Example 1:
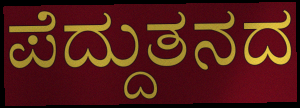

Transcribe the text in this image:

ಪೆದ್ದುತನದ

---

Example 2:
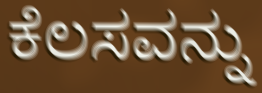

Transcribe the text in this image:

ಕೆಲಸವನ್ನು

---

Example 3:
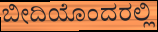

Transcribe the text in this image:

ಬೀದಿಯೊಂದರಲ್ಲಿ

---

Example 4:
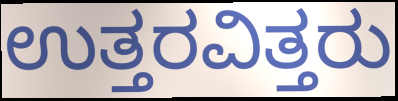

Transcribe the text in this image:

ಉತ್ತರವಿತ್ತರು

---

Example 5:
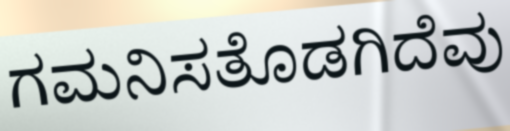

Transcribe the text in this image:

ಗಮನಿಸತೊಡಗಿದೆವು